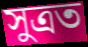
সুত্ৰত